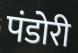
पंडोरी